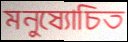
মনুষ্যোচিত